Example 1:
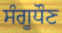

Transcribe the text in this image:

ਸੰਗੂਧੌਣ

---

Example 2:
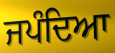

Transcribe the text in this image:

ਜਪੰਦਿਆ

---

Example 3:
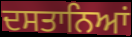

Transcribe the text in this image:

ਦਸਤਾਨਿਆਂ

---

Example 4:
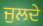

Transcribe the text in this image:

ਜੁਲਦੇ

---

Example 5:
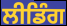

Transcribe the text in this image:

ਲੀਡਿੰਗ